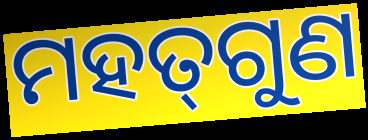
ମହତ୍‍ଗୁଣ